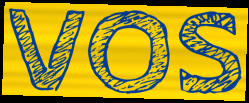
VOS